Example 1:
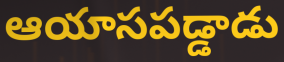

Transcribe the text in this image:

ఆయాసపడ్డాడు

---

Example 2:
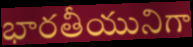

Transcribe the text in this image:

భారతీయునిగా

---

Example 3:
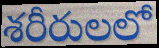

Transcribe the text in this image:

శరీరులలో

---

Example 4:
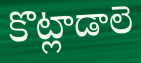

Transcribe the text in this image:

కొట్లాడాలె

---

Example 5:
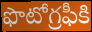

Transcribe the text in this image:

ఫొటోగ్రఫీకి